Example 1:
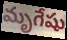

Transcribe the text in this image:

మృగేషు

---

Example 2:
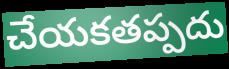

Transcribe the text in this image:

చేయకతప్పదు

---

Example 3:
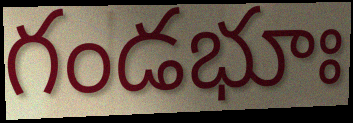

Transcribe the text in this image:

గండభూః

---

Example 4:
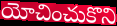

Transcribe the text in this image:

యోచించుకొని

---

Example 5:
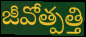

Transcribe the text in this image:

జీవోత్పత్తి